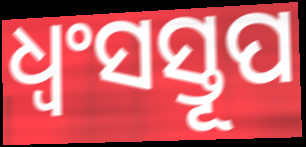
ଧ୍ୱଂସସ୍ତୂପ